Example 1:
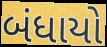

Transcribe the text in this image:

બંધાયો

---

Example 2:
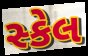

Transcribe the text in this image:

સ્કેલ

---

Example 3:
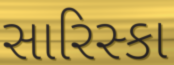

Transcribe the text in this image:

સારિસ્કા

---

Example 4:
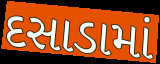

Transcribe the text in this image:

દસાડામાં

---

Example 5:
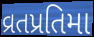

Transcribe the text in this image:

વ્રતપ્રતિમા